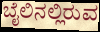
ಬೈಲಿನಲ್ಲಿರುವ